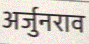
अर्जुनराव